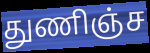
துணிஞ்ச